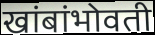
खांबांभोवती